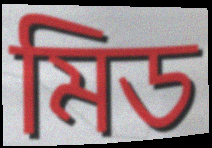
মিড